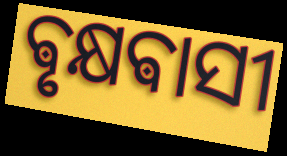
ଵୃକ୍ଷଵାସୀ